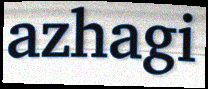
azhagi